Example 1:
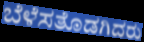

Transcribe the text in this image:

ಬೆಳೆಸತೊಡಗಿದರು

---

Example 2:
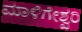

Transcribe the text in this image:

ಮಾಳಿಗೇಶ್ವರಿ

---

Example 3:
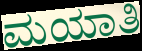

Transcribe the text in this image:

ಮಯಾತಿ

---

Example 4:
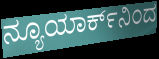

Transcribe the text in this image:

ನ್ಯೂಯಾರ್ಕ್‌ನಿಂದ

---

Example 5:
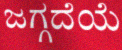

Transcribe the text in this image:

ಜಗ್ಗದೆಯೆ